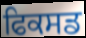
ਫਿਕਸਡ